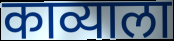
काव्याला